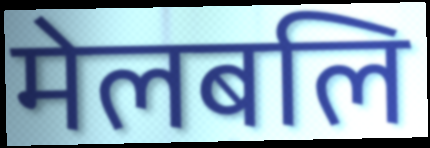
मेलबलि